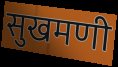
सुखमणी